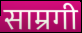
साम्रगी